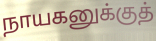
நாயகனுக்குத்